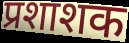
प्रशाशक